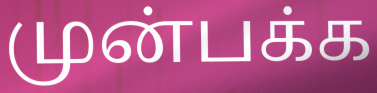
முன்பக்க